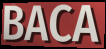
BACA